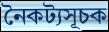
নৈকট্যসূচক